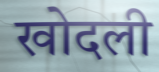
खोदली